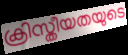
ക്രിസ്തീയതയുടെ